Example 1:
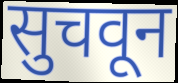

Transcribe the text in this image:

सुचवून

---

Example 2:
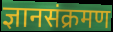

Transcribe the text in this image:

ज्ञानसंक्रमण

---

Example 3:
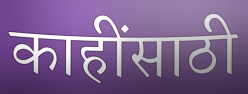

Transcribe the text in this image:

काहींसाठी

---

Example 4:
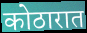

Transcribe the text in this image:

कोठारात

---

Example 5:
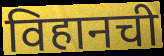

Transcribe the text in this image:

विहानची